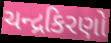
ચન્દ્રકિરણો